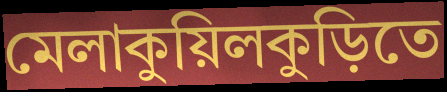
মেলাকুয়িলকুড়িতে